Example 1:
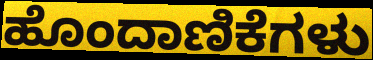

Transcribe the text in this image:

ಹೊಂದಾಣಿಕೆಗಳು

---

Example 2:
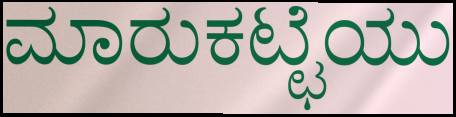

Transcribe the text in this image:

ಮಾರುಕಟ್ಟೆಯು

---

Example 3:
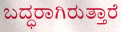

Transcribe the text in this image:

ಬದ್ಧರಾಗಿರುತ್ತಾರೆ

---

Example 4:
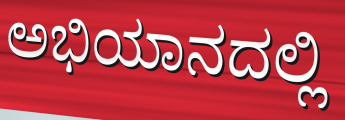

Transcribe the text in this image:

ಅಭಿಯಾನದಲ್ಲಿ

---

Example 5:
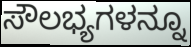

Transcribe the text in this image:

ಸೌಲಭ್ಯಗಳನ್ನೂ